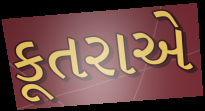
કૂતરાએ